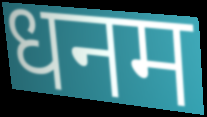
धनम